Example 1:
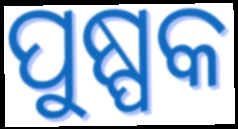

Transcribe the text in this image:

ପୁଷ୍ପକ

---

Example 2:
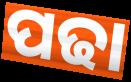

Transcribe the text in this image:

ପଢା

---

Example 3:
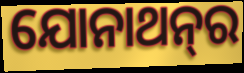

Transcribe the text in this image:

ଯୋନାଥନ୍‍ର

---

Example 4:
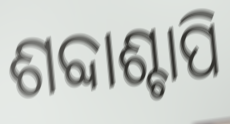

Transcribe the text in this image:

ଶବ୍ଦାଶ୍ଚାପି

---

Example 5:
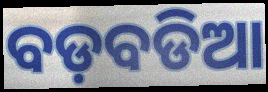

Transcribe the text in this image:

ବଡ଼ବଡିଆ